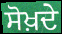
ਸੋਖ਼ਦੇ